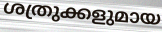
ശത്രുക്കളുമായ